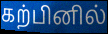
கற்பினில்